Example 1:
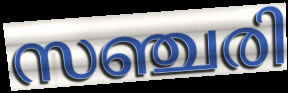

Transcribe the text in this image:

സഞ്ചരി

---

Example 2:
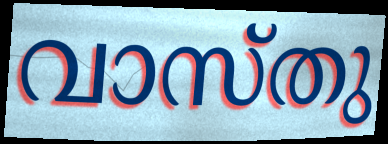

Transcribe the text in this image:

വാസ്തു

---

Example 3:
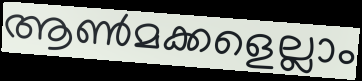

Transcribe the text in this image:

ആൺമക്കളെല്ലാം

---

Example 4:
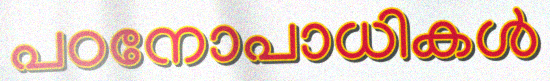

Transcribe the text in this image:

പഠനോപാധികൾ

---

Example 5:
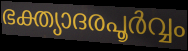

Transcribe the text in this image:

ഭക്ത്യാദരപൂർവ്വം